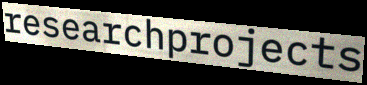
researchprojects